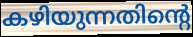
കഴിയുന്നതിന്റെ